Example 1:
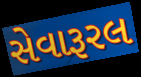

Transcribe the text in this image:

સેવારૂરલ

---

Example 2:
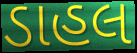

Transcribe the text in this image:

ડાહલ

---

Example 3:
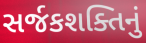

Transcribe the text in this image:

સર્જકશક્તિનું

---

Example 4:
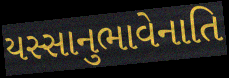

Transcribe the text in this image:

યસ્સાનુભાવેનાતિ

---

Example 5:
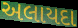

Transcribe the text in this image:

અલાયદા